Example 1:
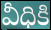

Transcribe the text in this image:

వీధికి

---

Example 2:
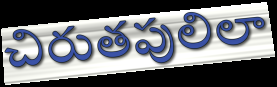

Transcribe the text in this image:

చిరుతపులిలా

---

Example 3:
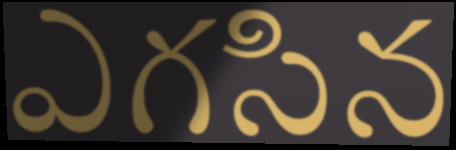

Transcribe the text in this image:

ఎగసిన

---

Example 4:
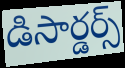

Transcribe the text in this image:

డిసార్డర్స్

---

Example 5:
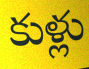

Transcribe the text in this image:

కుళ్లు